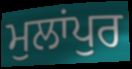
ਮੁਲਾਂਪੁਰ